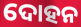
ଦୋହନ